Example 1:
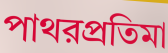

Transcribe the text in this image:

পাথরপ্রতিমা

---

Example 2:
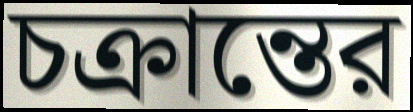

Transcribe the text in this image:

চক্রান্তের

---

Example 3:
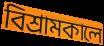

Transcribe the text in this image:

বিশ্রামকালে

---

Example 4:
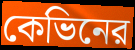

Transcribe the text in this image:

কেভিনের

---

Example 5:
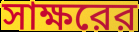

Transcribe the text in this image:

সাক্ষরের